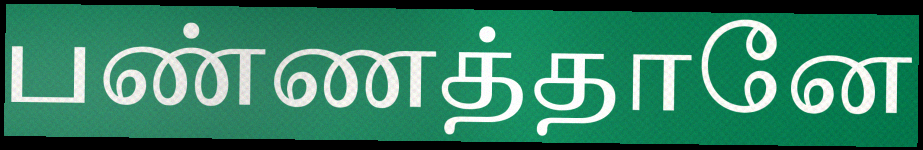
பண்ணத்தானே